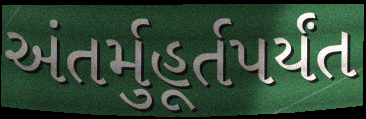
અંતર્મુહૂર્તપર્યંત